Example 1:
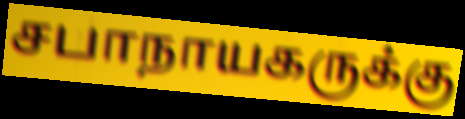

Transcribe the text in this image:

சபாநாயகருக்கு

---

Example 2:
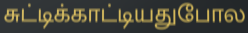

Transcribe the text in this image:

சுட்டிக்காட்டியதுபோல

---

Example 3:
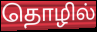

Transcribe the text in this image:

தொழில்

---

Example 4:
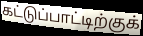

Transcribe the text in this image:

கட்டுப்பாட்டிற்குக்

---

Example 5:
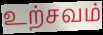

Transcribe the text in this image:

உற்சவம்